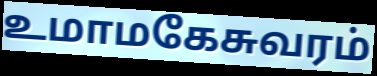
உமாமகேசுவரம்